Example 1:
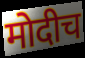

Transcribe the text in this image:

मोदीच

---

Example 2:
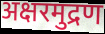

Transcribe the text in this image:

अक्षरमुद्रण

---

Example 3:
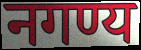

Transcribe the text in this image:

नगण्य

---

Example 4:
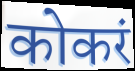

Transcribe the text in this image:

कोकरं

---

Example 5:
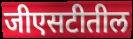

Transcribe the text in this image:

जीएसटीतील